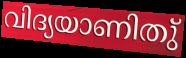
വിദ്യയാണിതു്